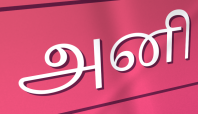
அனி